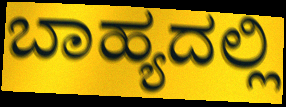
ಬಾಹ್ಯದಲ್ಲಿ